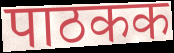
पाठकक